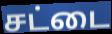
சட்டை